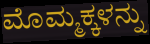
ಮೊಮ್ಮಕ್ಕಳನ್ನು